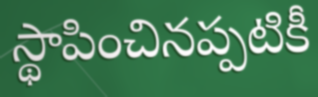
స్థాపించినప్పటికీ